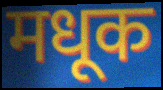
मधूक